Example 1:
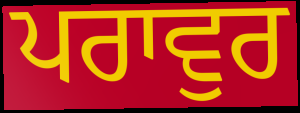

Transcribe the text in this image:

ਪਰਾਵੁਰ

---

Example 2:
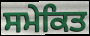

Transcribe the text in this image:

ਸਮੇਕਿਤ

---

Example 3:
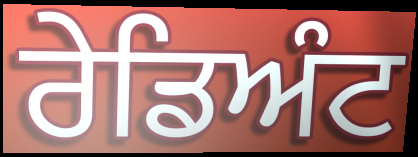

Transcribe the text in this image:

ਰੇਡਿਅੰਟ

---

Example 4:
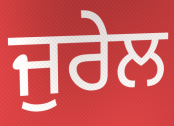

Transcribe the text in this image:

ਜੁਰੇਲ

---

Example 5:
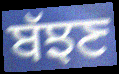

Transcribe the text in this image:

ਬੱਝਣ